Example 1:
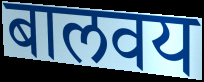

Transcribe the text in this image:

बालवय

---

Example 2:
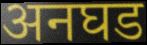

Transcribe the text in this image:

अनघड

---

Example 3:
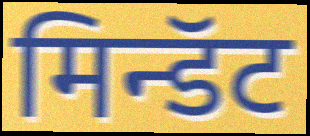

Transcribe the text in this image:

मिन्डॅट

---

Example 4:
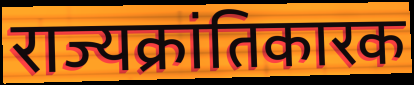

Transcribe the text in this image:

राज्यक्रांतिकारक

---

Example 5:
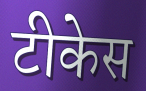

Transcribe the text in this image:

टीकेस